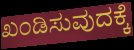
ಖಂಡಿಸುವುದಕ್ಕೆ